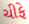
ચીફે